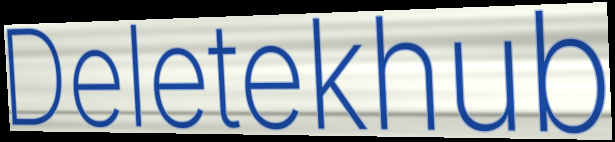
Deletekhub